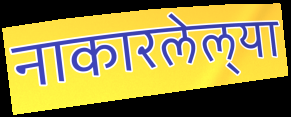
नाकारलेल्या